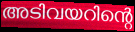
അടിവയറിന്റെ